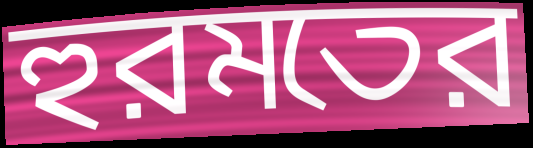
হুরমতের